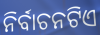
ନିର୍ବାଚନଟିଏ